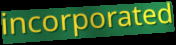
incorporated